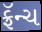
ફ્રૅન્ચ